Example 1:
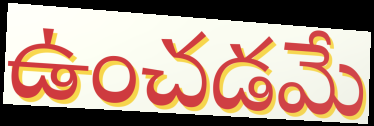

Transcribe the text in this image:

ఉంచడమే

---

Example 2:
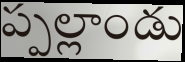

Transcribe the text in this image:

ప్పల్లాండు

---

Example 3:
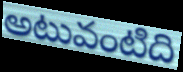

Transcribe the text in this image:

అటువంటిది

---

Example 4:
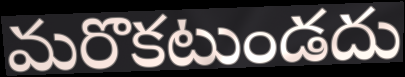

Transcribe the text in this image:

మరొకటుండదు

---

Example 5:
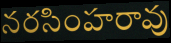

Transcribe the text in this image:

నరసింహరావు